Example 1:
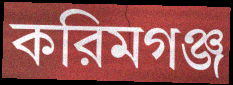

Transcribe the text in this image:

করিমগঞ্জ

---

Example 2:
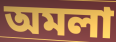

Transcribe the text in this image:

অমলা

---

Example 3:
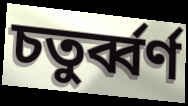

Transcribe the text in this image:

চতুর্ব্বর্ণ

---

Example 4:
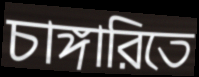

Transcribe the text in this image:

চাঙ্গারিতে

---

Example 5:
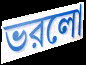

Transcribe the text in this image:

ভরলো